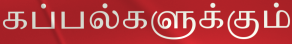
கப்பல்களுக்கும்